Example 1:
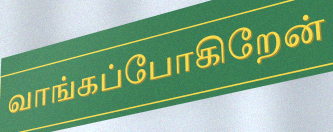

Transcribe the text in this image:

வாங்கப்போகிறேன்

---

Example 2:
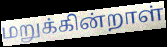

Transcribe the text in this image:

மறுக்கின்றாள்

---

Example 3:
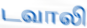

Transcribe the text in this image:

டவாலி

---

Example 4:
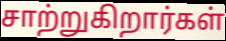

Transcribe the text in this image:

சாற்றுகிறார்கள்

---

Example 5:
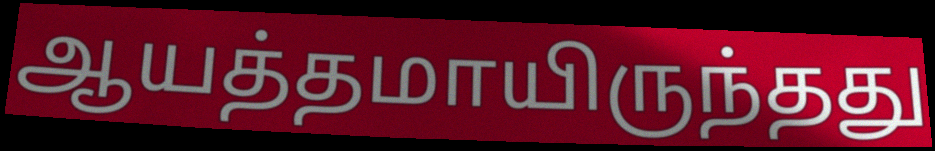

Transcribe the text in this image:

ஆயத்தமாயிருந்தது